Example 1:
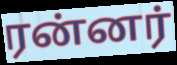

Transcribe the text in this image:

ரன்னர்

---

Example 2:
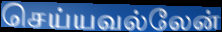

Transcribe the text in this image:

செய்யவல்லேன்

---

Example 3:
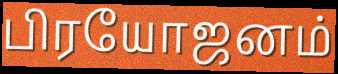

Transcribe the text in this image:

பிரயோஜனம்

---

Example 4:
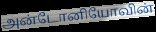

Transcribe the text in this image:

அன்டோனியோவின்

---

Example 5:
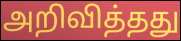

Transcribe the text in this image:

அறிவித்தது